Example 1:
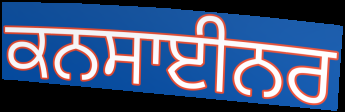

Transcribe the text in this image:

ਕਨਸਾਈਨਰ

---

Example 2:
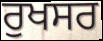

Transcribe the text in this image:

ਰੁਖਸਰ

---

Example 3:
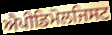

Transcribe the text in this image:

ਐਪੀਡਿਮੋਲਜਿਸਟ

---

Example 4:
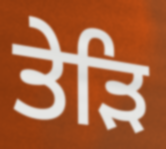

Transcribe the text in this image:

ਤੇੜਿ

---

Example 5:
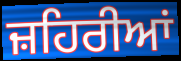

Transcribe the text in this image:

ਜ਼ਹਿਰੀਆਂ